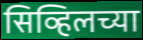
सिव्हिलच्या